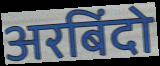
अरबिंदो